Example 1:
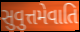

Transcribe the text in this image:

સુવુત્તમેવાતિ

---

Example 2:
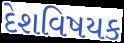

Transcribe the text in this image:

દેશવિષયક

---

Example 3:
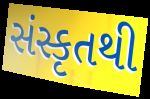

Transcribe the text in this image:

સંસ્કૃતથી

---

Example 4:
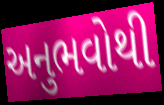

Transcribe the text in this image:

અનુભવોથી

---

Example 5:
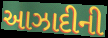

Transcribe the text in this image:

આઝાદીની